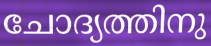
ചോദ്യത്തിനു